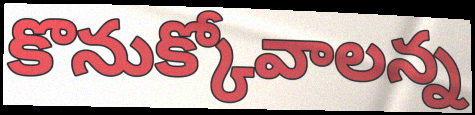
కొనుక్కోవాలన్న